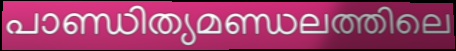
പാണ്ഡിത്യമണ്ഡലത്തിലെ